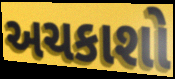
અચકાશો